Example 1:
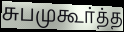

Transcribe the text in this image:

சுபமுகூர்த்த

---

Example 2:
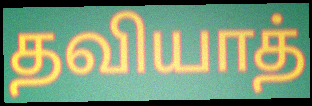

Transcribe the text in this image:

தவியாத்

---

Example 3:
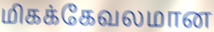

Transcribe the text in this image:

மிகக்கேவலமான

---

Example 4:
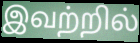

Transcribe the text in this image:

இவற்றில்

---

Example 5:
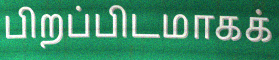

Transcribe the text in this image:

பிறப்பிடமாகக்